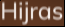
Hijras